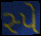
સ્પે